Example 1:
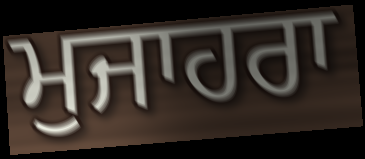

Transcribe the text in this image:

ਮੁਜਾਹਰਾ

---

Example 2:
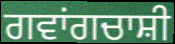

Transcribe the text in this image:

ਗਵਾਂਗਚਾਸ਼ੀ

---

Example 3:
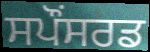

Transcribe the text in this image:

ਸਪੌਂਸਰਡ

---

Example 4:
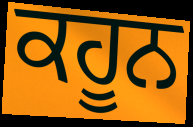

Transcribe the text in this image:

ਕਹੂਨ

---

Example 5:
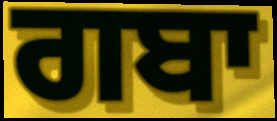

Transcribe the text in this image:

ਗਬਾ